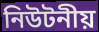
নিউটনীয়